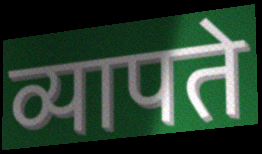
व्यापते